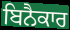
ਬਿਨੈਕਾਰ